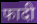
फादी